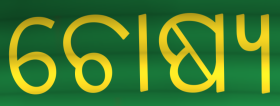
ଚୋଷ୍ୟ